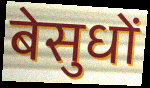
बेसुधों